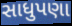
સાધુપણા